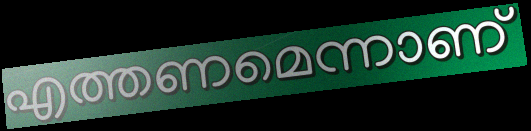
എത്തണമെന്നാണ്